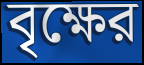
বৃক্ষের